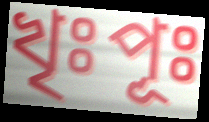
খৃঃপূঃ